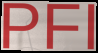
PFI